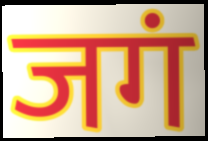
जगं